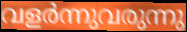
വളർന്നുവരുന്നു